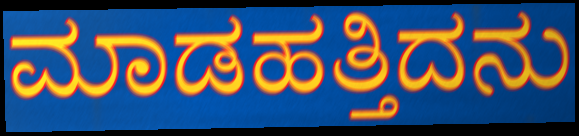
ಮಾಡಹತ್ತಿದನು